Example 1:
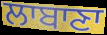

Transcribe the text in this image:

ਲਾਬਾਣਾ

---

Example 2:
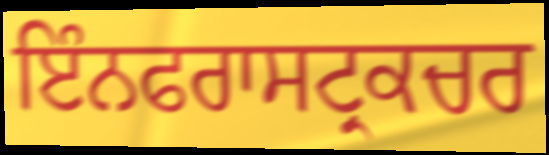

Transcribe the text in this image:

ਇੰਨਫਰਾਸਟ੍ਰਕਚਰ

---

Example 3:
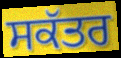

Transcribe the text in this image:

ਸਕੱਤਰ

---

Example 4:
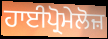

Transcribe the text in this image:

ਹਾਈਪ੍ਰੋਮੇਲੋਜ਼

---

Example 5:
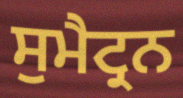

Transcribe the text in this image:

ਸੁਮੈਟ੍ਰਨ